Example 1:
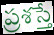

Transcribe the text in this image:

ప్రశస్తే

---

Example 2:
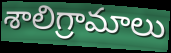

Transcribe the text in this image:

శాలిగ్రామాలు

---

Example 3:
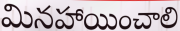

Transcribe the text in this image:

మినహాయించాలి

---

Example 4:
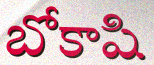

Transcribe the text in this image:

బోకాషి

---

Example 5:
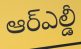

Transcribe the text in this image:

ఆర్ఎల్డీ